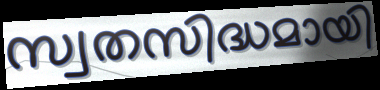
സ്വതസിദ്ധമായി